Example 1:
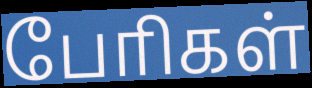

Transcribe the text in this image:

பேரிகள்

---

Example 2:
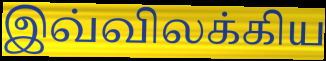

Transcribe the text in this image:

இவ்விலக்கிய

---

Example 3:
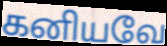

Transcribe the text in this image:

கனியவே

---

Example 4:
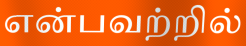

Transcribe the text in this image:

என்பவற்றில்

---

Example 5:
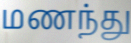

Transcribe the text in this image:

மணந்து